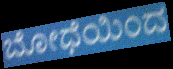
ಬೋಧೆಯಿಂದ